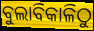
ବୁଲାବିକାଳିଠୁ